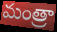
మంత్రా